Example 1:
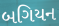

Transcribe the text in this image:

બગિયન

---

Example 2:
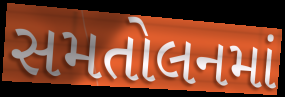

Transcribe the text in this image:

સમતોલનમાં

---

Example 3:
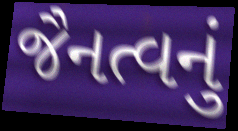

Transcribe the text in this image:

જૈનત્વનું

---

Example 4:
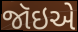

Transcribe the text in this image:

જૉઇએ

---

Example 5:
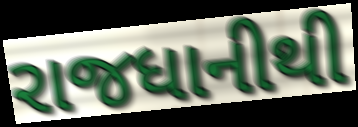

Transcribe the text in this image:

રાજધાનીથી